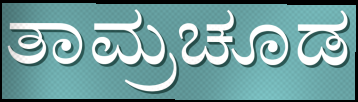
ತಾಮ್ರಚೂಡ